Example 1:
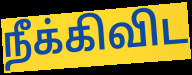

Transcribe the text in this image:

நீக்கிவிட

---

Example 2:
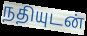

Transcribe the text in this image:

நதியுடன்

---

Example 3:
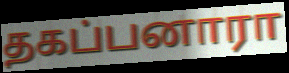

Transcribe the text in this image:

தகப்பனாரா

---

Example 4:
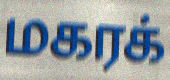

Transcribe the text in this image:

மகரக்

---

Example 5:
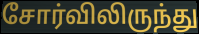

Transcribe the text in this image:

சோர்விலிருந்து